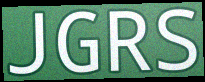
JGRS